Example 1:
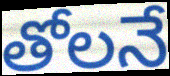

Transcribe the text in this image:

తోలనే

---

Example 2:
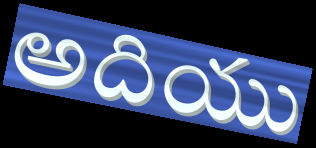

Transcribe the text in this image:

అదియు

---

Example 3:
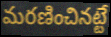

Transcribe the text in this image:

మరణించినట్టే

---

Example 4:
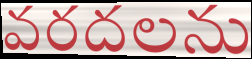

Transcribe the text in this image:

వరదలను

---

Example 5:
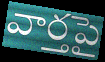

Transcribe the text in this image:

వార్తపై